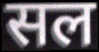
सल